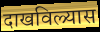
दाखविल्यास